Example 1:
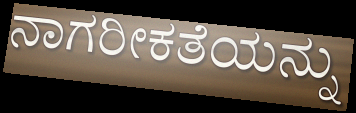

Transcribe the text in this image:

ನಾಗರೀಕತೆಯನ್ನು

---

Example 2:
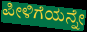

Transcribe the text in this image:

ಪೀಳಿಗೆಯನ್ನೇ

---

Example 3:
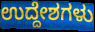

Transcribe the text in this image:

ಉದ್ದೇಶಗಳು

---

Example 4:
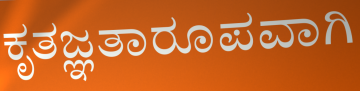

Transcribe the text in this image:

ಕೃತಜ್ಞತಾರೂಪವಾಗಿ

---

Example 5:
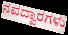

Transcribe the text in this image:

ನವದ್ವಾರಗಳು